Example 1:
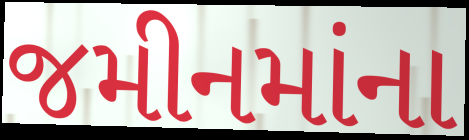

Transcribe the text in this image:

જમીનમાંના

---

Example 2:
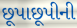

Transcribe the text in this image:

છૂપાછૂપીની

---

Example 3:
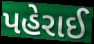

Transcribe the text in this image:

પહેરાઈ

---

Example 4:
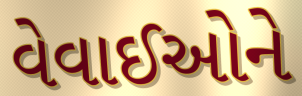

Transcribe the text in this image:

વેવાઈઓને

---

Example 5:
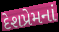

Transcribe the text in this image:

દેશપ્રેમનાં